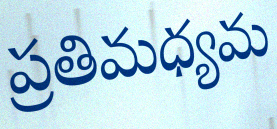
ప్రతిమధ్యమ